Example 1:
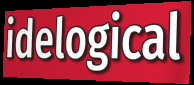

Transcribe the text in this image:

idelogical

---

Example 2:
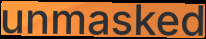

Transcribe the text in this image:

unmasked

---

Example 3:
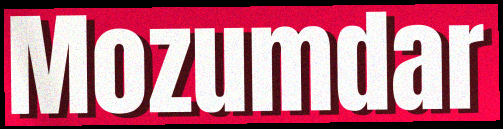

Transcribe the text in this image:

Mozumdar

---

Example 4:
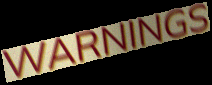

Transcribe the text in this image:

WARNINGS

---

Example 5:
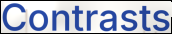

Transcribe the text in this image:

Contrasts